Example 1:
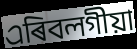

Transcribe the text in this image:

এৰিবলগীয়া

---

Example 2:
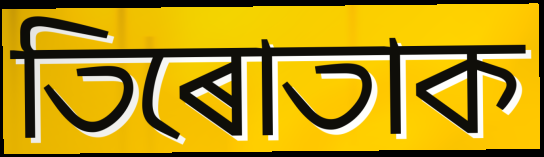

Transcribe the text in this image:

তিৰোতাক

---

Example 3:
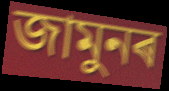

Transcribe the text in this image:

জামুনৰ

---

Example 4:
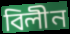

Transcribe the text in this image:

বিলীন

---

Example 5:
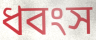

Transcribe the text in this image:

ধবংস